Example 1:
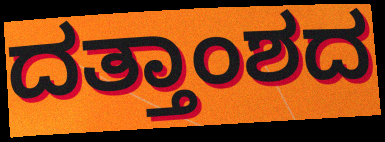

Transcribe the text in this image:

ದತ್ತಾಂಶದ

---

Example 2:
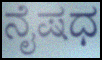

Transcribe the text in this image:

ನೈಷಧ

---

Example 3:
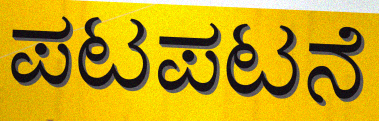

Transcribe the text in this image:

ಪಟಪಟನೆ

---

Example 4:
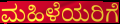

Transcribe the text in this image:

ಮಹಿಳೆಯರಿಗೆ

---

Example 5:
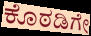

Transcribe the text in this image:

ಕೊಠಡಿಗೇ